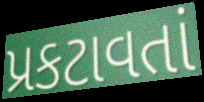
પ્રકટાવતાં